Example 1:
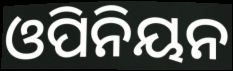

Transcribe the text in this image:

ଓପିନିୟନ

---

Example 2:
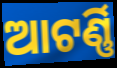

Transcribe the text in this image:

ଆଟର୍ଣ୍ଣି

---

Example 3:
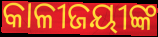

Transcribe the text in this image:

କାଳୀଜୟୀଙ୍କ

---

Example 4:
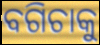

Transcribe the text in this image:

ବଗିଚାକୁ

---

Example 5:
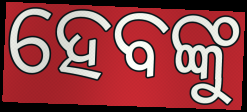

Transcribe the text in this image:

ହେବଙ୍କୁ